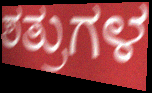
ಶತ್ರುಗಳ